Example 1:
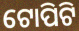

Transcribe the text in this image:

ଟୋପିଟି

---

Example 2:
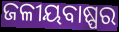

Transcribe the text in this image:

ଜଳୀୟବାଷ୍ପର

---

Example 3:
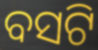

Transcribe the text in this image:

ବସଟି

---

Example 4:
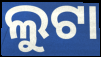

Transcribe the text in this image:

ଲୁଟା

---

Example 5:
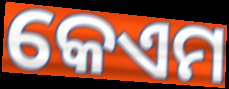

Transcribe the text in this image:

କେଏମ